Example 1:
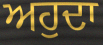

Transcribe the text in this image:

ਅਹੁਦਾ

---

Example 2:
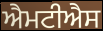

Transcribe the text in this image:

ਐਮਟੀਐਸ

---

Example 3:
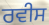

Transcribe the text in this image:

ਰਵੀਸ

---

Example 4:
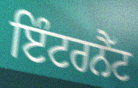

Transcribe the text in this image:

ਇੰਟਰਨੈੱਟ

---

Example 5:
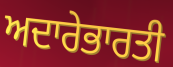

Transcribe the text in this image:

ਅਦਾਰੇਭਾਰਤੀ